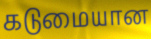
கடுமையான